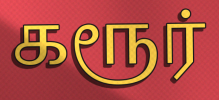
கரூர்